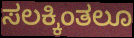
ಸಲಕ್ಕಿಂತಲೂ